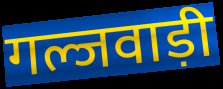
गल्जवाड़ी